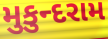
મુકુન્દરામ